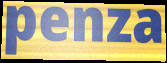
penza